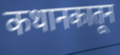
कथानकातून